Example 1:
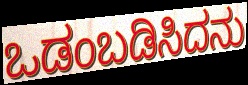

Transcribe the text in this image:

ಒಡಂಬಡಿಸಿದನು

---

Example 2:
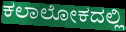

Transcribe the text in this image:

ಕಲಾಲೋಕದಲ್ಲಿ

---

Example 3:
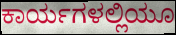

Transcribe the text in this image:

ಕಾರ್ಯಗಳಲ್ಲಿಯೂ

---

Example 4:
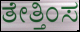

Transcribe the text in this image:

ತೇತ್ತಿಂಸ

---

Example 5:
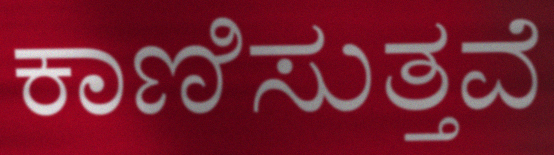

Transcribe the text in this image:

ಕಾಣಿಸುತ್ತವೆ